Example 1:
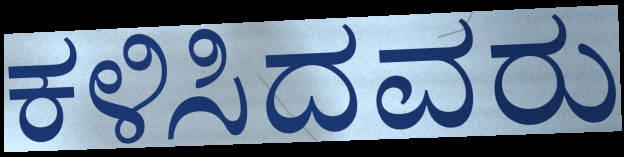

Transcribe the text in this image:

ಕಳಿಸಿದವರು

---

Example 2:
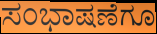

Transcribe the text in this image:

ಸಂಭಾಷಣೆಗೂ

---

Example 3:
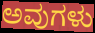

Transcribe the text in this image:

ಅವುಗಳು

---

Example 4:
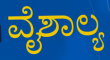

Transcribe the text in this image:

ವೈಶಾಲ್ಯ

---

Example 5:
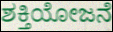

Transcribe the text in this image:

ಶಕ್ತಿಯೋಜನೆ